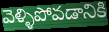
వెళ్ళిపోవడానికి